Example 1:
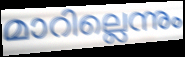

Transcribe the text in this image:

മാറില്ലെന്നും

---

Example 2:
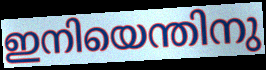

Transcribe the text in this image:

ഇനിയെന്തിനു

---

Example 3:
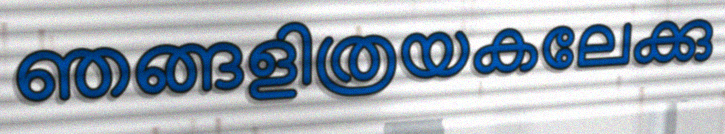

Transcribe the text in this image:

ഞങ്ങളിത്രയകലേക്കു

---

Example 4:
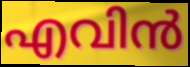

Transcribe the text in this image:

എവിൻ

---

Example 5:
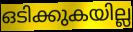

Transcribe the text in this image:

ഒടിക്കുകയില്ല